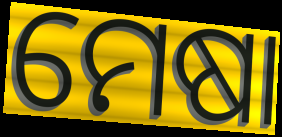
ମେଷା